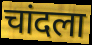
चांदला